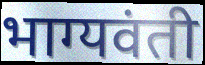
भाग्यवंती